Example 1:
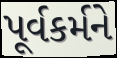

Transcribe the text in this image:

પૂર્વકર્મને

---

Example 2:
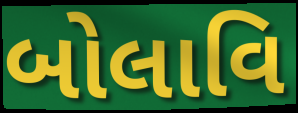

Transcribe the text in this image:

બોલાવિ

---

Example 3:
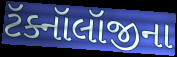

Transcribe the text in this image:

ટૅક્નૉલૉજીના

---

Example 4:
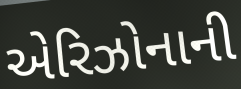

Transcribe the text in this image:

એરિઝોનાની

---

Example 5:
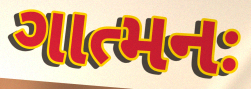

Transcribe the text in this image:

ગાત્મનઃ